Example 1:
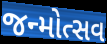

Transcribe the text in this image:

જન્મોત્સવ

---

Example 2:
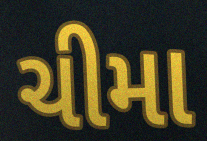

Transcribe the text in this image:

ચીમા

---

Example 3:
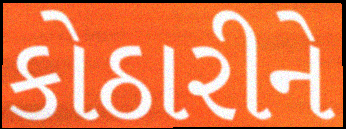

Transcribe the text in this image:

કોઠારીને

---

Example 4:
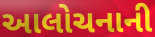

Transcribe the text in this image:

આલોચનાની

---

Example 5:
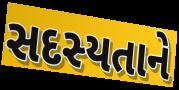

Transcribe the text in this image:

સદસ્યતાને